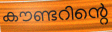
കൗണ്ടറിന്റെ